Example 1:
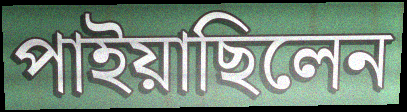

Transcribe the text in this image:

পাইয়াছিলেন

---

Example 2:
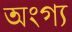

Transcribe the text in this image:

অংগ্য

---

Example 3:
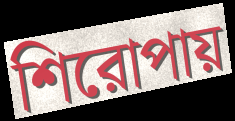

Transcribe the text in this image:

শিরোপায়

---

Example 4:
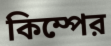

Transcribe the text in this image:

কিম্পের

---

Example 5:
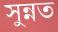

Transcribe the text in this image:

সুন্নত